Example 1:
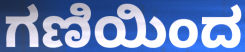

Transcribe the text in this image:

ಗಣಿಯಿಂದ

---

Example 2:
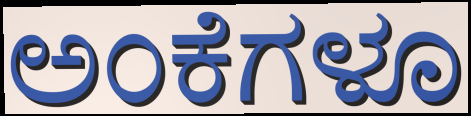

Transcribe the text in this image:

ಅಂಕೆಗಳೂ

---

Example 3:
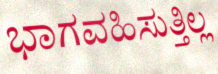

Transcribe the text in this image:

ಭಾಗವಹಿಸುತ್ತಿಲ್ಲ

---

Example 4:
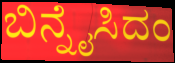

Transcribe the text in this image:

ಬಿನ್ನೈಸಿದಂ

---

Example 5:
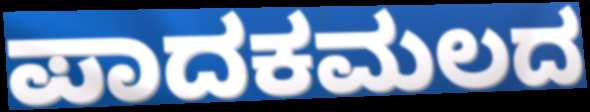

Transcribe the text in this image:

ಪಾದಕಮಲದ